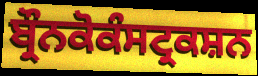
ਬ੍ਰੌਨਕੋਕੰਸਟ੍ਰਕਸ਼ਨ